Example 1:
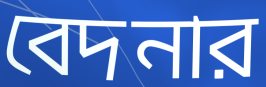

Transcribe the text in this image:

বেদনার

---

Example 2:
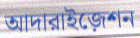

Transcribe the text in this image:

আদারাইজ়েশন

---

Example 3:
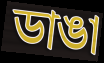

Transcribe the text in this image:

ডাঙা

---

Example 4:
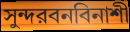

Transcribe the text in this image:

সুন্দরবনবিনাশী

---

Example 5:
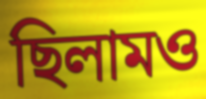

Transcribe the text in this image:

ছিলামও